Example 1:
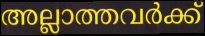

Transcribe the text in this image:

അല്ലാത്തവർക്ക്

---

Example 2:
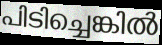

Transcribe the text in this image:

പിടിച്ചെങ്കിൽ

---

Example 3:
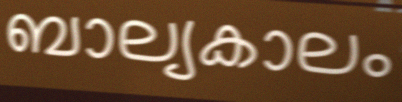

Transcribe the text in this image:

ബാല്യകാലം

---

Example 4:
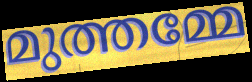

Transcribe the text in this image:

മുത്തമ്മേ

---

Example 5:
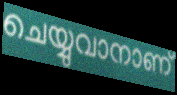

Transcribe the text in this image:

ചെയ്യുവാനാണ്